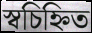
স্বচিহ্নিত